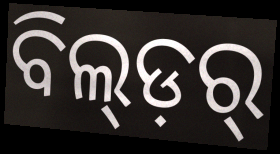
ବିଲ୍ଡ଼ର୍